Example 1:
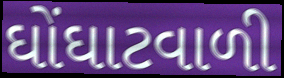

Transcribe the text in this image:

ઘોંઘાટવાળી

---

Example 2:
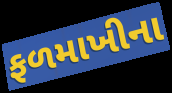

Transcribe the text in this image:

ફળમાખીના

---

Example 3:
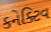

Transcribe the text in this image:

કનેક્ટિવ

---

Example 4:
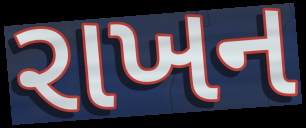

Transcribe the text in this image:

રાખન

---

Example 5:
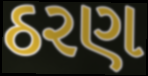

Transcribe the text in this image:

ઠરણ